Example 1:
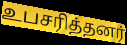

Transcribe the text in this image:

உபசரித்தனர்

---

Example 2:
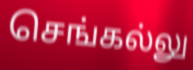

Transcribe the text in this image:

செங்கல்லு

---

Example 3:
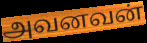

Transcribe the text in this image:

அவனவன்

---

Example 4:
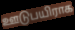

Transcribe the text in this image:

ஊடுபயிராக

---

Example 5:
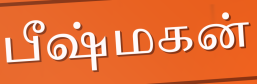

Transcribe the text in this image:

பீஷ்மகன்